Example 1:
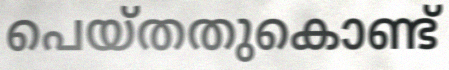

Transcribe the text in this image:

പെയ്തതുകൊണ്ട്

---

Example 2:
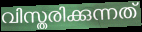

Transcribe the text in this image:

വിസ്തരിക്കുന്നത്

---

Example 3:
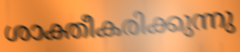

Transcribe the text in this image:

ശാക്തീകരിക്കുന്നു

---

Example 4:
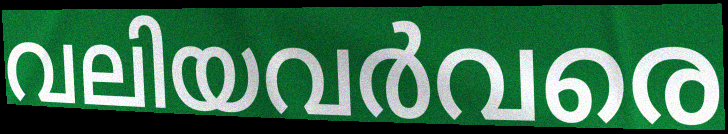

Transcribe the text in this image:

വലിയവർവരെ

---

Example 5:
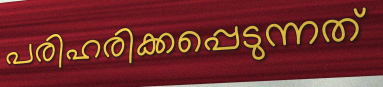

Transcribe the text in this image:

പരിഹരിക്കപ്പെടുന്നത്